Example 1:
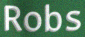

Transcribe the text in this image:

Robs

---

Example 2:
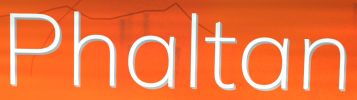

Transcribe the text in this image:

Phaltan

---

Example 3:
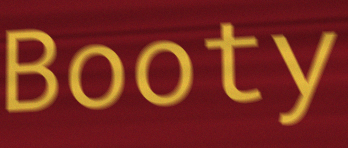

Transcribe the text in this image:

Booty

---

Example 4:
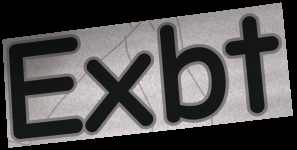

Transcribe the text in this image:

Exbt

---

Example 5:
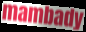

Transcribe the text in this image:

mambady